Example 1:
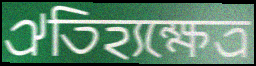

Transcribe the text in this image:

ঐতিহ্যক্ষেত্ৰ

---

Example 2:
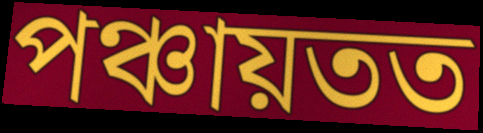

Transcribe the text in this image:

পঞ্চায়তত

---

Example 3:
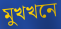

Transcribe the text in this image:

মুখখনে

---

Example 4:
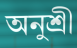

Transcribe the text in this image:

অনুশ্ৰী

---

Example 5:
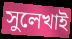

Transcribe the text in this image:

সুলেখাই